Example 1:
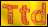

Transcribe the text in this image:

Ttd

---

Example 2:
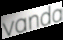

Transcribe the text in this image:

vanda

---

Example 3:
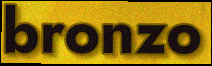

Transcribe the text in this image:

bronzo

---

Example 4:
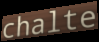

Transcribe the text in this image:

chalte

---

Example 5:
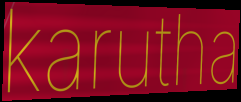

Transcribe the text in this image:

karutha